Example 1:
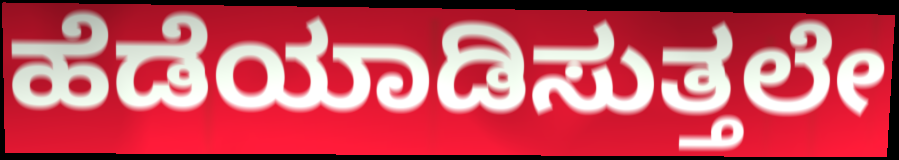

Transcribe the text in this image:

ಹೆಡೆಯಾಡಿಸುತ್ತಲೇ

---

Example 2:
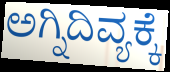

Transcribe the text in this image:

ಅಗ್ನಿದಿವ್ಯಕ್ಕೆ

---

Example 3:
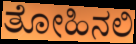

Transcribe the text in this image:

ತೋಹಿನಲಿ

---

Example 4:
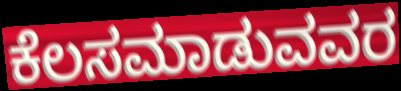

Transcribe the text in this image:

ಕೆಲಸಮಾಡುವವರ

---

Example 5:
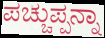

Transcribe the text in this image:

ಪಚ್ಚುಪ್ಪನ್ನಾ